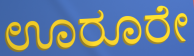
ಊರೂರೇ